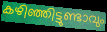
കഴിഞ്ഞിട്ടുണ്ടാവും